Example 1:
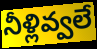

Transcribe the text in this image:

నీళ్లివ్వలే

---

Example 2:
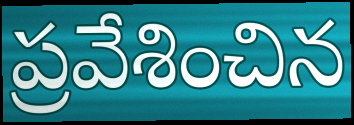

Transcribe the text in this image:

ప్రవేశించిన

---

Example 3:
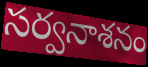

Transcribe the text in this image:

సర్వనాశనం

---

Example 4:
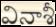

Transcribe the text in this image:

వినాశీ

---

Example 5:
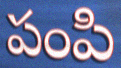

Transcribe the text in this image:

పంపి